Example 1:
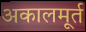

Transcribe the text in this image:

अकालमूर्त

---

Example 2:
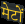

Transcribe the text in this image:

मेटों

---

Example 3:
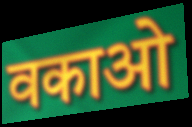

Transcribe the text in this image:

वकाओ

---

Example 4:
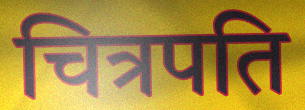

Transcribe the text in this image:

चित्रपति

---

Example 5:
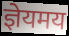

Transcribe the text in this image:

ज्ञेयमय